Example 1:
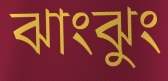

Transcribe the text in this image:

ঝাংঝুং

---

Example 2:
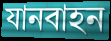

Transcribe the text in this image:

যানবাহন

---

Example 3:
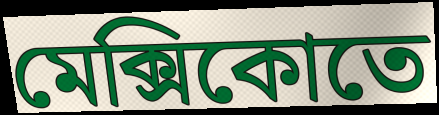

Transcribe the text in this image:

মেক্সিকোতে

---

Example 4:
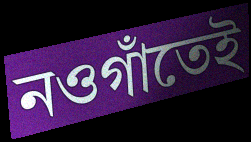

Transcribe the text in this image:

নওগাঁতেই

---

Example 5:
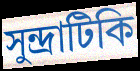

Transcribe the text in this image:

সুন্দ্রাটিকি